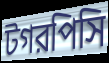
টগরপিসি